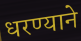
धरण्याने